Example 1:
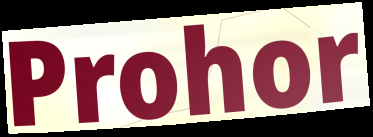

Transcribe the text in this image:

Prohor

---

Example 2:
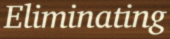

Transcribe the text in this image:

Eliminating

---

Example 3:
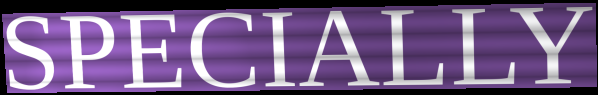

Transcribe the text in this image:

SPECIALLY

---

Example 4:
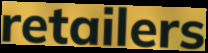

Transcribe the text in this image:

retailers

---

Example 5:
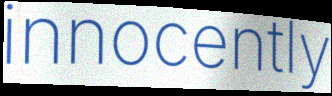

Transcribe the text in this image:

innocently